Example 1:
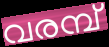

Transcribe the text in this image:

വരമ്പ്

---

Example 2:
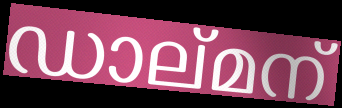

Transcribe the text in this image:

ഡാല്മന്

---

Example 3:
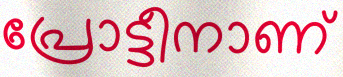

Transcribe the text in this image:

പ്രോട്ടീനാണ്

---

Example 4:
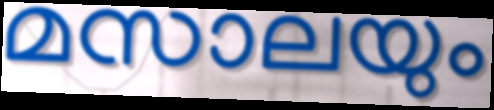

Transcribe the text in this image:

മസാലയും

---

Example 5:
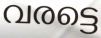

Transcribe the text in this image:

വരട്ടെ